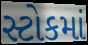
સ્ટોકમાં